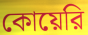
কোয়েরি